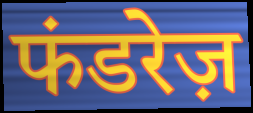
फंडरेज़